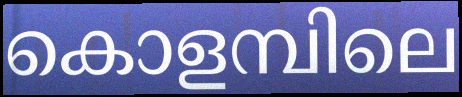
കൊളമ്പിലെ